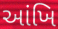
આંખિ